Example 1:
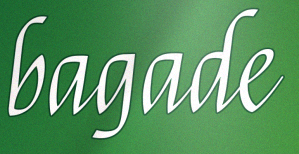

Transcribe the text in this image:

bagade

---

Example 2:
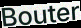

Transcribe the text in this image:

Bouter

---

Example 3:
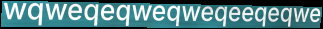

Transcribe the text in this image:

wqweqeqweqweqeeqeqwe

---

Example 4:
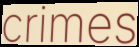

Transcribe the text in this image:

crimes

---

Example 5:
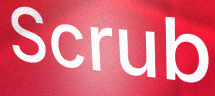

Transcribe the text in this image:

Scrub